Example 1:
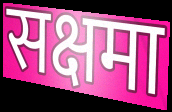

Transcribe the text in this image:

सक्षमा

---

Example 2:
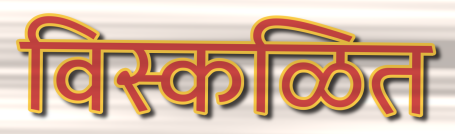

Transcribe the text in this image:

विस्कळित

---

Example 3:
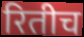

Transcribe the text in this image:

रितीच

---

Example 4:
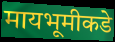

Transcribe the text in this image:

मायभूमीकडे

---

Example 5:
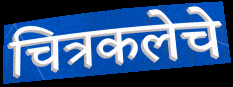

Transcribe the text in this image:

चित्रकलेचे